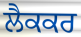
ਲੈਕਕਰ